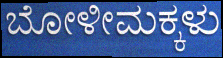
ಬೋಳೀಮಕ್ಕಳು